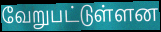
வேறுபட்டுள்ளன